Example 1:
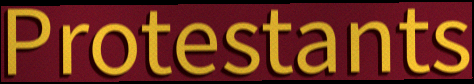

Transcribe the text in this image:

Protestants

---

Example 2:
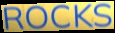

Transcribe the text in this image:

ROCKS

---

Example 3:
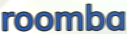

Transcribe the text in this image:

roomba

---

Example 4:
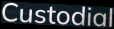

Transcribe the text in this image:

Custodial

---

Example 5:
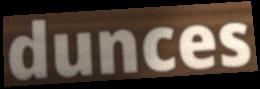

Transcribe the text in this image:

dunces